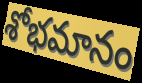
శోభమానం